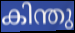
കിന്തു